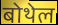
बोथेल